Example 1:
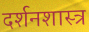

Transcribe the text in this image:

दर्शनशास्त्र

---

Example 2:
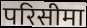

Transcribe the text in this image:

परिसीमा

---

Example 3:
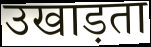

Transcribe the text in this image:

उखाड़ता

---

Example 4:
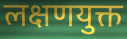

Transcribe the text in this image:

लक्षणयुक्त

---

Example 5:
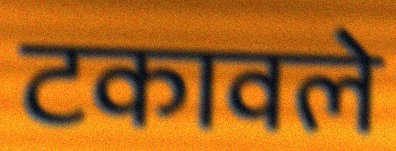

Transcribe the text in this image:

टकावले